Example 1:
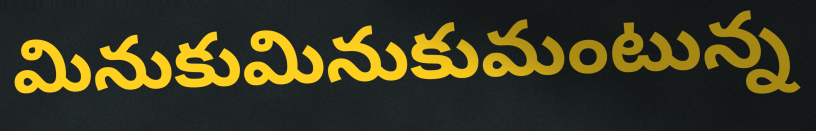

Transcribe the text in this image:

మినుకుమినుకుమంటున్న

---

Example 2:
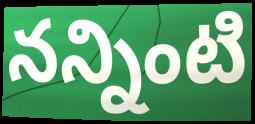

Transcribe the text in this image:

నన్నింటి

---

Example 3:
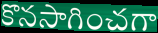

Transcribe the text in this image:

కొనసాగించగా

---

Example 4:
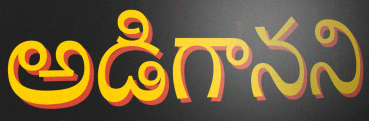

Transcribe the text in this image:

అడిగానని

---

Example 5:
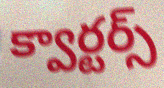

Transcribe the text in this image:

క్వార్టర్స్